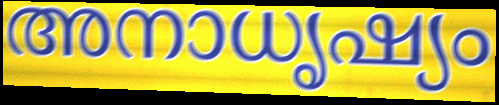
അനാധൃഷ്യം